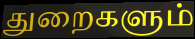
துறைகளும்